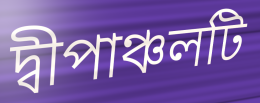
দ্বীপাঞ্চলটি